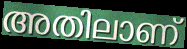
അതിലാണ്